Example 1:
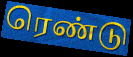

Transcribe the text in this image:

ரெண்டு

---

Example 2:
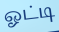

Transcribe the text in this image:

ஓட்டி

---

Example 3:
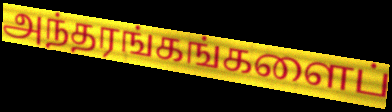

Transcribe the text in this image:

அந்தரங்கங்களைப்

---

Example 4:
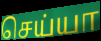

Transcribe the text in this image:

செய்யா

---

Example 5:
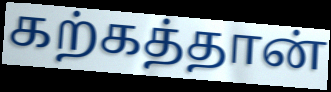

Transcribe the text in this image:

கற்கத்தான்